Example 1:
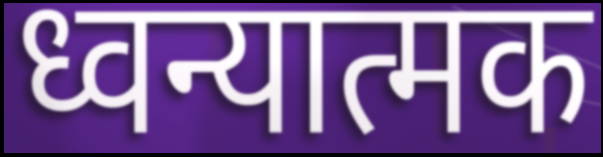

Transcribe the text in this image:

ध्वन्यात्मक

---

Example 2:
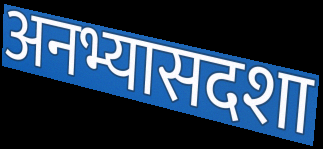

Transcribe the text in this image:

अनभ्यासदशा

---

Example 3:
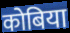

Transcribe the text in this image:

कोबिया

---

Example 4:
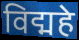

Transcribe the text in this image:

विद्महे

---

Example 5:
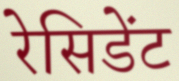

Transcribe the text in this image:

रेसिडेंट